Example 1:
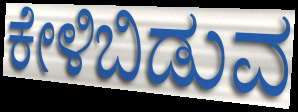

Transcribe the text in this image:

ಕೇಳಿಬಿಡುವ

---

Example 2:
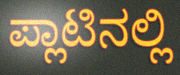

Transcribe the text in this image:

ಪ್ಲಾಟಿನಲ್ಲಿ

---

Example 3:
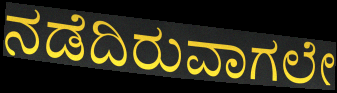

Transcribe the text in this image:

ನಡೆದಿರುವಾಗಲೇ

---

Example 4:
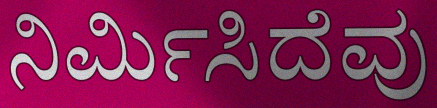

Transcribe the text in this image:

ನಿರ್ಮಿಸಿದೆವು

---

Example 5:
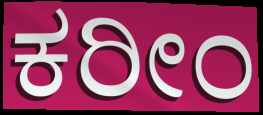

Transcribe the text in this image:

ಕರೀಂ